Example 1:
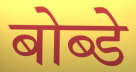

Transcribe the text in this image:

बोब्डे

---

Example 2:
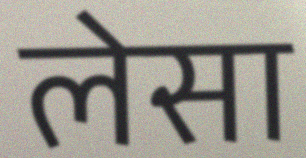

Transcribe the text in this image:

लेसा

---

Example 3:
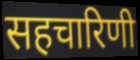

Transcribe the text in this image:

सहचारिणी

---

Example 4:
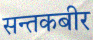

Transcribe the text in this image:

सन्तकबीर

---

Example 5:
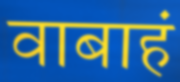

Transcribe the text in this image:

वाबाहं